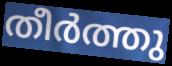
തീർത്തു